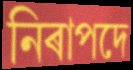
নিৰাপদে